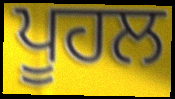
ਪੂਹਲ